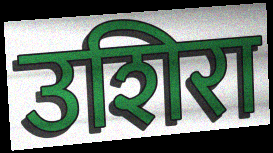
उशिरा